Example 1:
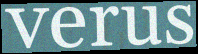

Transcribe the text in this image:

verus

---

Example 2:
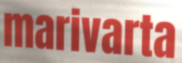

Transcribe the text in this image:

marivarta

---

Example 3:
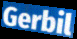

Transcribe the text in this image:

Gerbil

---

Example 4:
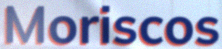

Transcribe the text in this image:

Moriscos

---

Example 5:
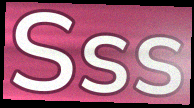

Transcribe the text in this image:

Sss